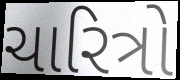
ચારિત્રો